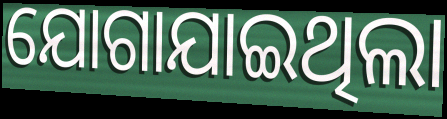
ଯୋଗାଯାଇଥିଲା